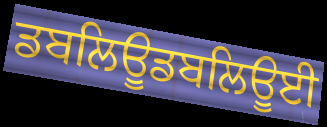
ਡਬਲਿਊਡਬਲਿਊਈ